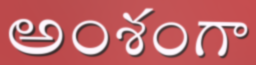
అంశంగా